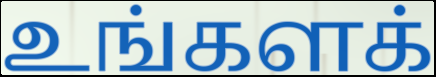
உங்களக்